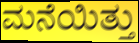
ಮನೆಯಿತ್ತು